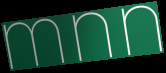
mnn